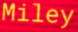
Miley